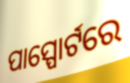
ପାସ୍ପୋର୍ଟରେ